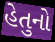
હેતુનો